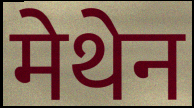
मेथेन